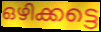
ഒഴിക്കട്ടെ